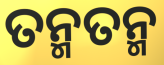
ତନ୍ମତନ୍ମ